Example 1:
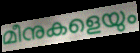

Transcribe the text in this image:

മീനുകളെയും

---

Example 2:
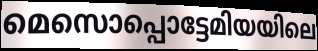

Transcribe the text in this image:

മെസൊപ്പൊട്ടേമിയയിലെ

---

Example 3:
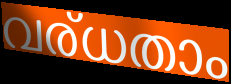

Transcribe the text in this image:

വര്ധതാം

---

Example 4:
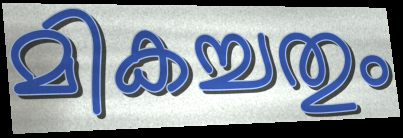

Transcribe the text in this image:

മികച്ചതും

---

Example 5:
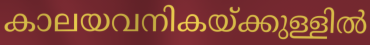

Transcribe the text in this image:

കാലയവനികയ്ക്കുള്ളിൽ